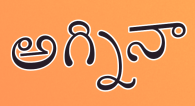
అగ్నినా